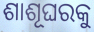
ଶାଶୂଘରକୁ